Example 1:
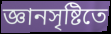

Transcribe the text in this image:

জ্ঞানসৃষ্টিতে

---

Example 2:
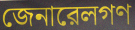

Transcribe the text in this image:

জেনারেলগণ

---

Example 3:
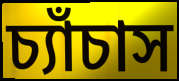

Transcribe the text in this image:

চ্যাঁচাস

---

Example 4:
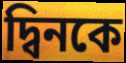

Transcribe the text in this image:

দ্বিনকে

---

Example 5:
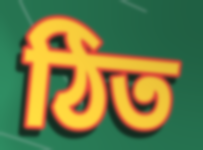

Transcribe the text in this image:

ঠিত